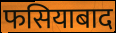
फसियाबाद